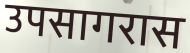
उपसागरास